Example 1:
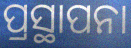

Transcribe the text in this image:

ପ୍ରସ୍ଥାପନା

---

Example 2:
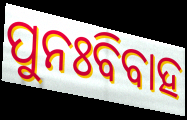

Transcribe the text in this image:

ପୁନଃବିବାହ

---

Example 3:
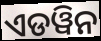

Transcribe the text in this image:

ଏଡୱିନ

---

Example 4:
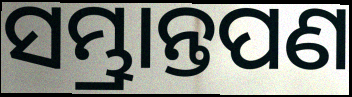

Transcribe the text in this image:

ସମ୍ଭ୍ରାନ୍ତପଣ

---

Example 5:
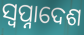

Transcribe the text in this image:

ସ୍ଵପ୍ନାଦେଶ